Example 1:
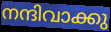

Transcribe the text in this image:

നന്ദിവാക്കു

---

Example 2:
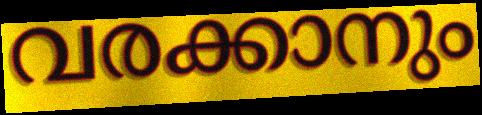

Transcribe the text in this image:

വരക്കാനും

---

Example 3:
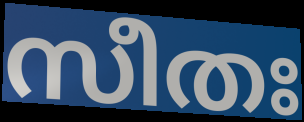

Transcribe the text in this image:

സീതഃ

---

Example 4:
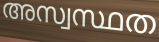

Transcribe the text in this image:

അസ്വസ്ഥത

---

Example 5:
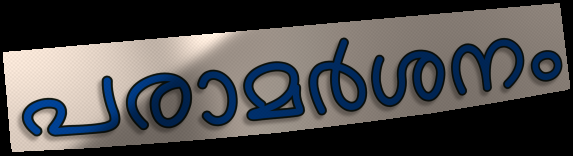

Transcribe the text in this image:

പരാമർശനം